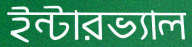
ইন্টারভ্যাল